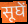
सूघें